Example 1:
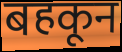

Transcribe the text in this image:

बहकून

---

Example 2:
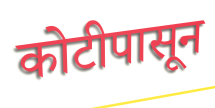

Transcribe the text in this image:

कोटीपासून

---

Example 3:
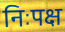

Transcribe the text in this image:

निःपक्ष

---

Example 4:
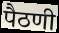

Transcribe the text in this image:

पैठणी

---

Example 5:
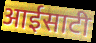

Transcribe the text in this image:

आईसाटी